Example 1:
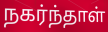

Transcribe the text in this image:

நகர்ந்தாள்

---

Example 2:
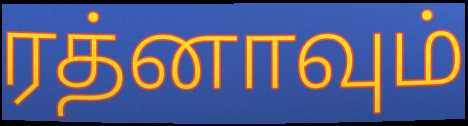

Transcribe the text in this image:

ரத்னாவும்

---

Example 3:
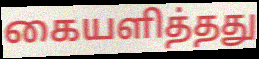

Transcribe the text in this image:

கையளித்தது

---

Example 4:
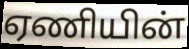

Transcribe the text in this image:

ஏணியின்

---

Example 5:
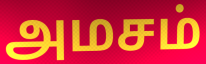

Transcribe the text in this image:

அமசம்